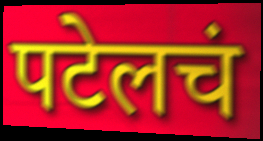
पटेलचं